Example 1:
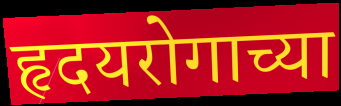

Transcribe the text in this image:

हृदयरोगाच्या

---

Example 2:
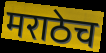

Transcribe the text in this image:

मराठेच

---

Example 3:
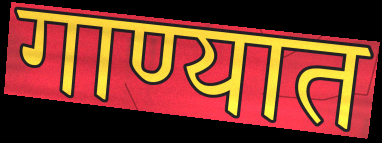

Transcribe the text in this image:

गाण्यात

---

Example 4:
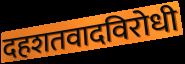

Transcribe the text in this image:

दहशतवादविरोधी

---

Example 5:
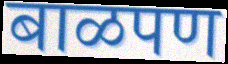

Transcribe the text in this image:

बाळपण